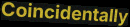
Coincidentally